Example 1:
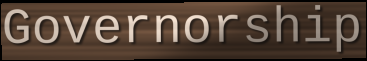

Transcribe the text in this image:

Governorship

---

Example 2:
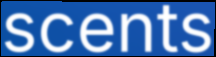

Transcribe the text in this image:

scents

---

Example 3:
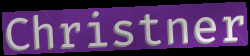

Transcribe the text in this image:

Christner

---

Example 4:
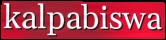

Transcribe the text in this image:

kalpabiswa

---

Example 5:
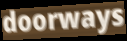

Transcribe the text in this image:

doorways